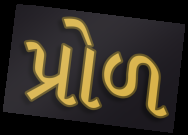
પ્રોળ